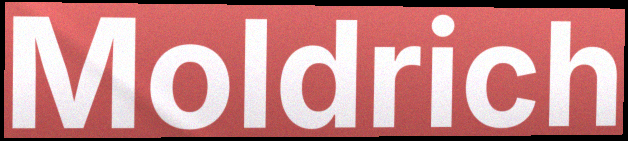
Moldrich